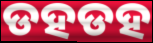
ଡହଡହ